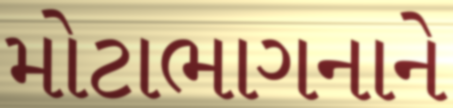
મોટાભાગનાને